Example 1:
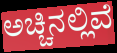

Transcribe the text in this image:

ಅಚ್ಚಿನಲ್ಲಿವೆ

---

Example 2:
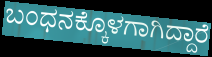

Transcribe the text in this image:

ಬಂಧನಕ್ಕೊಳಗಾಗಿದ್ದಾರೆ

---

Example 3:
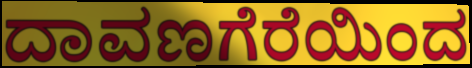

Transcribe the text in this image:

ದಾವಣಗೆರೆಯಿಂದ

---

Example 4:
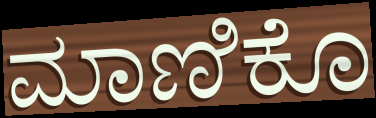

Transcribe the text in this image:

ಮಾಣಿಕೊ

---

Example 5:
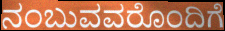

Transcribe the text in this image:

ನಂಬುವವರೊಂದಿಗೆ